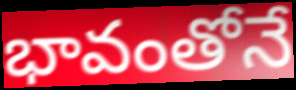
భావంతోనే